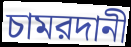
চামরদানী